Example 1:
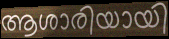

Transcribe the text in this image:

ആശാരിയായി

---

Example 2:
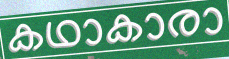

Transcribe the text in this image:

കഥാകാരാ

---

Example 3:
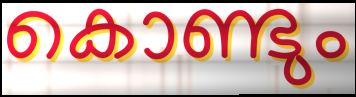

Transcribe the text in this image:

കൊണ്ടും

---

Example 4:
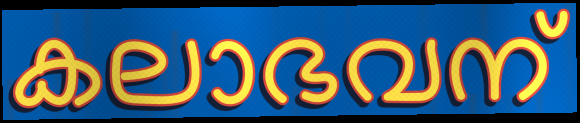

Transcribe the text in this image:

കലാഭവന്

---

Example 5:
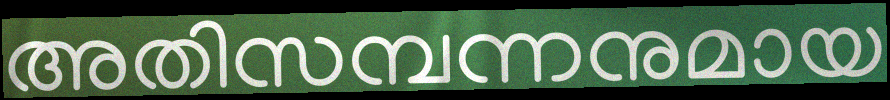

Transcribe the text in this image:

അതിസമ്പന്നനുമായ